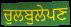
ਚੁਲਬੁਲੇਪਣ